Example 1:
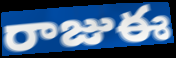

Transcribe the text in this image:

రాజుఈ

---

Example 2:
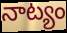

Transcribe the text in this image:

నాట్యం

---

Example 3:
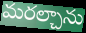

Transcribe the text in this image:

మరల్చాను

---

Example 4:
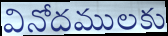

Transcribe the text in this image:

వినోదములకు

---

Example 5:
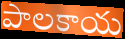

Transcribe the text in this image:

పాలకాయ